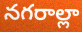
నగరాల్లా